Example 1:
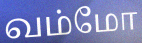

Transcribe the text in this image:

வம்மோ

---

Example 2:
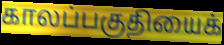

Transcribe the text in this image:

காலப்பகுதியைக்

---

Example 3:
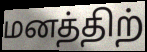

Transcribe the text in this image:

மனத்திற்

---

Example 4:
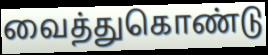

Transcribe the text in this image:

வைத்துகொண்டு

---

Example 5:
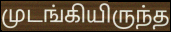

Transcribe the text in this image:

முடங்கியிருந்த